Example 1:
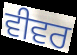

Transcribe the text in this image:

ਵੀਵਰ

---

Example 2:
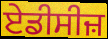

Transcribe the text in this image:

ਏਡੀਸੀਜ਼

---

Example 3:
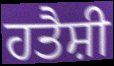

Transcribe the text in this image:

ਹਤੈਸ਼ੀ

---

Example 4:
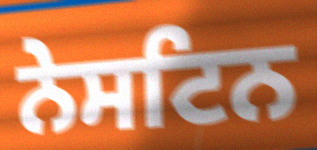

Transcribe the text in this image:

ਨੇਸਟਿਨ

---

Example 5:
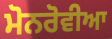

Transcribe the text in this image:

ਮੋਨਰੋਵੀਆ